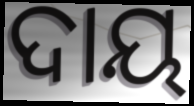
ଦାୟ